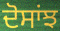
ਦੋਸਾਂਝ